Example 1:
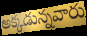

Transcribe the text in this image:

అక్కడున్నవారు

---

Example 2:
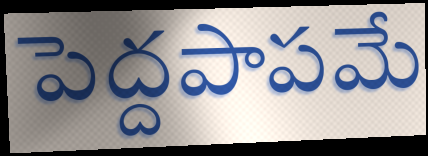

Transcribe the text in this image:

పెద్దపాపమే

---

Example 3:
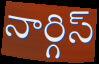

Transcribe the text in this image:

నార్గిస్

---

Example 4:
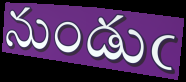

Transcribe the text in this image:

నుండుఁ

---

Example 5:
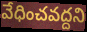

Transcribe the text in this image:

వేధించవద్దని